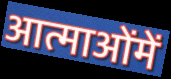
आत्माओंमें